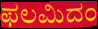
ಫಲಮಿದಂ